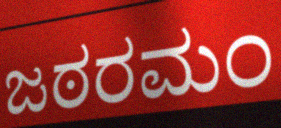
ಜಠರಮಂ